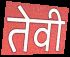
तेवी